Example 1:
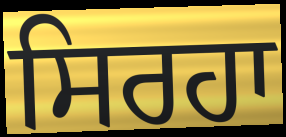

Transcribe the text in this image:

ਸਿਰਹਾ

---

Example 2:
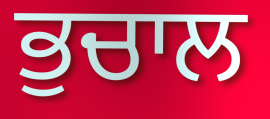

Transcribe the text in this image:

ਭੁਚਾਲ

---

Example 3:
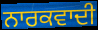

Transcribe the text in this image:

ਨਾਰਕਵਾਦੀ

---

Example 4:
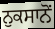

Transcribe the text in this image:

ਨੁਕਸਾਨੋਂ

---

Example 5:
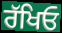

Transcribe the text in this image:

ਰੱਖਿਓ